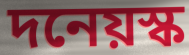
দনেয়স্ক